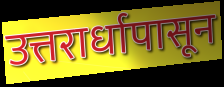
उत्तरार्धापासून